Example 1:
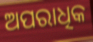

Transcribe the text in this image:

ଅପରାଧିକ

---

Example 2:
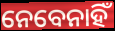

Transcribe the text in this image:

ନେବେନାହିଁ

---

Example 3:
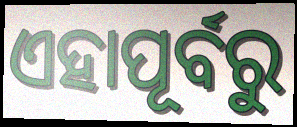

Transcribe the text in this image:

ଏହାପୂର୍ବରୁ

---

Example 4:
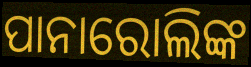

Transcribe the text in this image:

ପାନାରୋଲିଙ୍କ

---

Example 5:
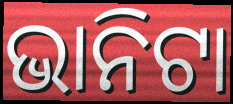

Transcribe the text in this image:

ଭାନିଟା